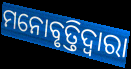
ମନୋବୃତ୍ତିଦ୍ଵାରା